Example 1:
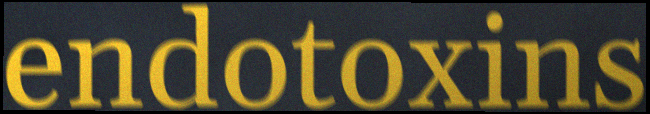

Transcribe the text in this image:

endotoxins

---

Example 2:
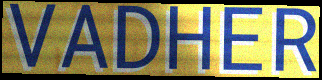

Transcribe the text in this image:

VADHER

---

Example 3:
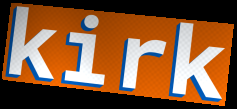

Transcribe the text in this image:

kirk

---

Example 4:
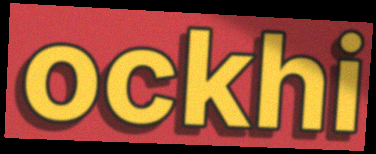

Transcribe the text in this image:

ockhi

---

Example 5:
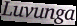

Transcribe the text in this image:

Luvunga